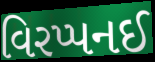
વિરપ્પનઈ